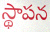
స్థాపన